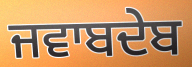
ਜਵਾਬਦੇਬ